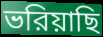
ভরিয়াছি